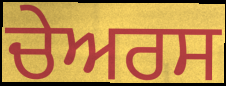
ਚੇਅਰਸ